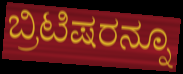
ಬ್ರಿಟಿಷರನ್ನೂ